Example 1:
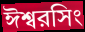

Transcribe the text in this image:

ঈশ্বরসিং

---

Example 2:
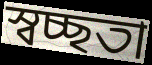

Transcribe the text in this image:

স্বচ্ছতা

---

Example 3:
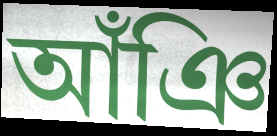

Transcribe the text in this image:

আঁঞি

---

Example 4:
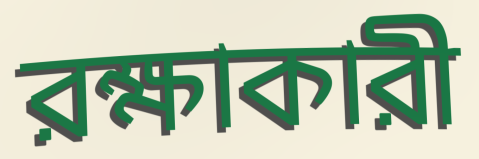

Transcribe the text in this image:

রক্ষাকারী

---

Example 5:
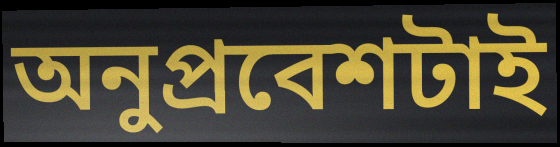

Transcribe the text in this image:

অনুপ্রবেশটাই